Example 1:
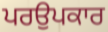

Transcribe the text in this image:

ਪਰਉਪਕਾਰ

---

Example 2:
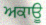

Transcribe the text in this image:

ਅਕਾਊ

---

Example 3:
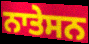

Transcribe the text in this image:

ਨਾਤੇਸਨ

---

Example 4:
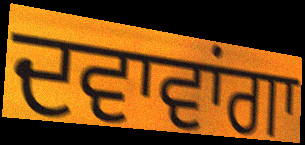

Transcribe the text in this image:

ਦਵਾਵਾਂਗਾ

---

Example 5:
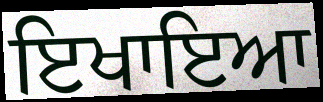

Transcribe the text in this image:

ਇਖਾਇਆ